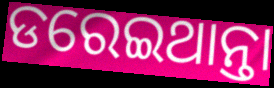
ଡରେଇଥାନ୍ତା